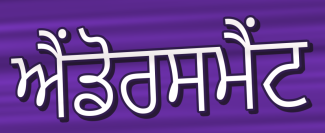
ਐਂਡੋਰਸਮੈਂਟ